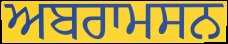
ਅਬਰਾਮਸਨ